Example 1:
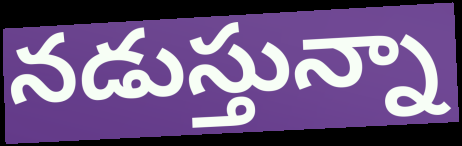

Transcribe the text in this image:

నడుస్తున్నా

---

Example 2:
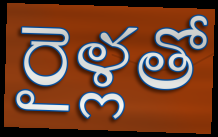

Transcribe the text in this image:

రైళ్లతో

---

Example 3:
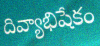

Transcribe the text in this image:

దివ్యాభిషేకం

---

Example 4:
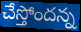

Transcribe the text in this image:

చేస్తోందన్న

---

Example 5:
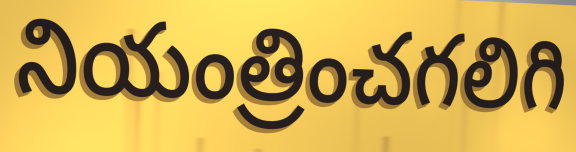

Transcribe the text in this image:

నియంత్రించగలిగి